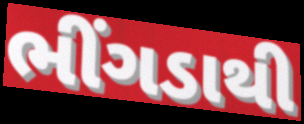
ભીંગડાથી